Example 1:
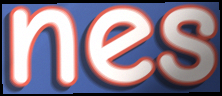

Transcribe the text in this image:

nes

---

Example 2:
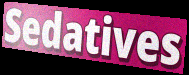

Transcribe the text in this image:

Sedatives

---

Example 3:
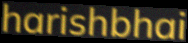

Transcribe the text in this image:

harishbhai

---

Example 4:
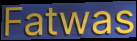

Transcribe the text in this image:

Fatwas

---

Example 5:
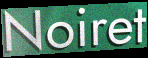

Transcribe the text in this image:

Noiret